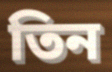
তিন